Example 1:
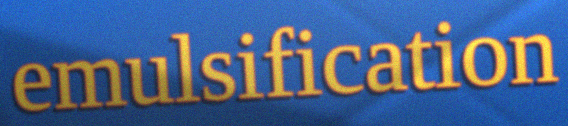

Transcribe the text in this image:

emulsification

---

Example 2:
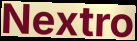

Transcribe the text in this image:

Nextro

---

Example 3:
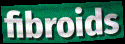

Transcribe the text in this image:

fibroids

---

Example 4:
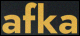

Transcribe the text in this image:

afka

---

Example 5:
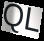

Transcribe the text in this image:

QL